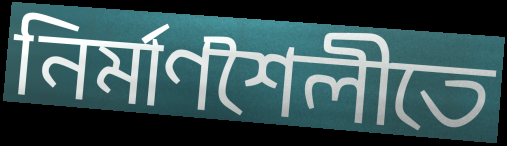
নির্মাণশৈলীতে